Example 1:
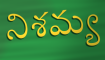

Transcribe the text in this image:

నిశమ్య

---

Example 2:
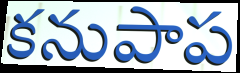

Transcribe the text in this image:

కనుపాప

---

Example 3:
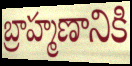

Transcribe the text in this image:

బ్రాహ్మణానికి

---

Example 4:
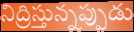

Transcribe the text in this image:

నిద్రిస్తున్నప్పుడు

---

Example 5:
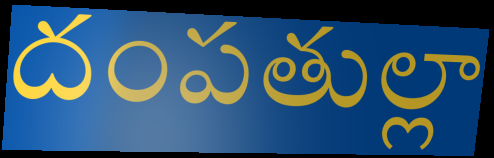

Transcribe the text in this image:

దంపతుల్లా